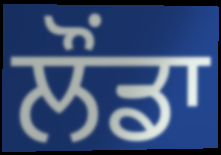
ਲੌਂਡਾ